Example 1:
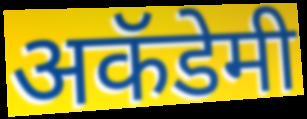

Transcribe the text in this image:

अकॅडेमी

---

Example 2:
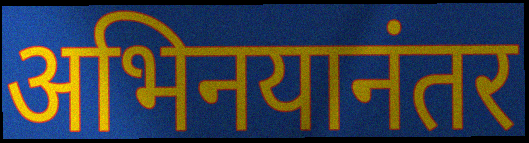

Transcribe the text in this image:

अभिनयानंतर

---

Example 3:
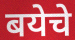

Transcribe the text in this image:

बयेचे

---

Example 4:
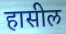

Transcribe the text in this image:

हासील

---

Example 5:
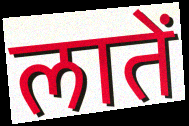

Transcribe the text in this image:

लातें